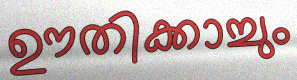
ഊതിക്കാച്ചും